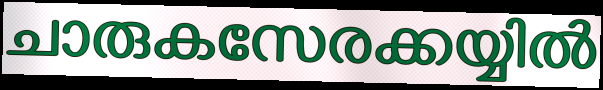
ചാരുകസേരക്കയ്യിൽ